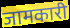
जामकारी